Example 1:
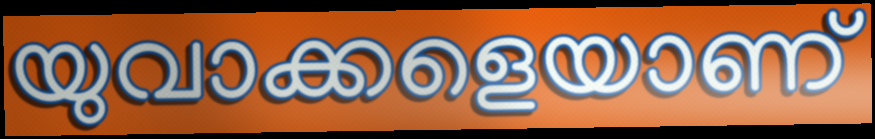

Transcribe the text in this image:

യുവാക്കളെയാണ്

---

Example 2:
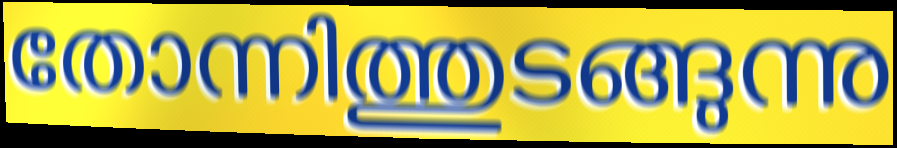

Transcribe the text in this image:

തോന്നിത്തുടങ്ങുന്നു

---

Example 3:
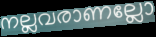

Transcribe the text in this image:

നല്ലവരാണല്ലോ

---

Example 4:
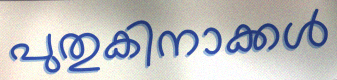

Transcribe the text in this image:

പുതുകിനാക്കൾ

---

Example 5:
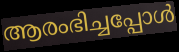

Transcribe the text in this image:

ആരംഭിച്ചപ്പോൾ